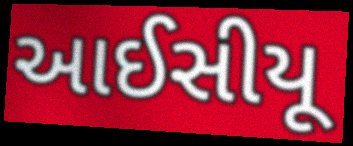
આઈસીયૂ